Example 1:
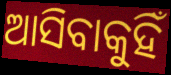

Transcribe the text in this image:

ଆସିବାକୁହିଁ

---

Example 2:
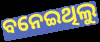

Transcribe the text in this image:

ବନେଇଥିଲୁ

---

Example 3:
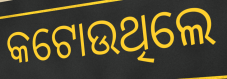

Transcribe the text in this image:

କଟୋଉଥିଲେ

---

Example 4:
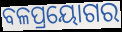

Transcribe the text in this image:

ବଳପ୍ରୟୋଗର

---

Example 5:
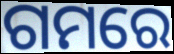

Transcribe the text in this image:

ଗମରେ